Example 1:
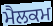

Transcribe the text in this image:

ਮੈਲਕਮ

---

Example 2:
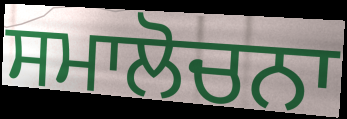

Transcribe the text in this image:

ਸਮਾਲੋਚਨਾ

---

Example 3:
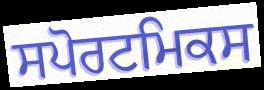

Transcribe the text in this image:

ਸਪੋਰਟਮਿਕਸ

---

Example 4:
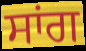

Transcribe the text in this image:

ਸਾਂਗ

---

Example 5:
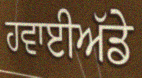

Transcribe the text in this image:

ਹਵਾਈਅੱਡੇ